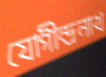
যোগীন্দ্রনাথ